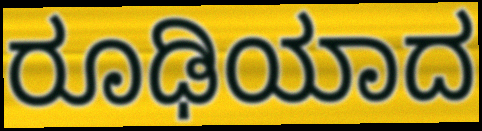
ರೂಢಿಯಾದ